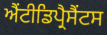
ਐਂਟੀਡਿਪ੍ਰੈਸੈਂਟਸ